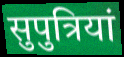
सुपुत्रियां